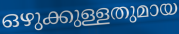
ഒഴുക്കുള്ളതുമായ